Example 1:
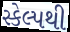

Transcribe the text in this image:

સ્કેલ્પથી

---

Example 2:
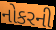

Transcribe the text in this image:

નોકરની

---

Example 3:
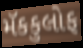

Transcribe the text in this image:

મૅકકુલોફ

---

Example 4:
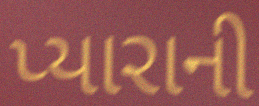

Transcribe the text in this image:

પ્યારાની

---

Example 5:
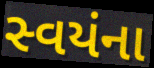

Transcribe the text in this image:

સ્વયંના